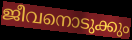
ജീവനൊടുക്കും